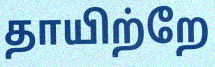
தாயிற்றே